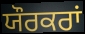
ਯੌਰਕਰਾਂ